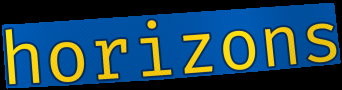
horizons